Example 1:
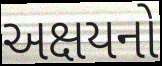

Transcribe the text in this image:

અક્ષયનો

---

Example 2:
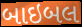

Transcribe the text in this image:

બાઇબલ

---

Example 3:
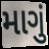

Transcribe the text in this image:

માગું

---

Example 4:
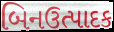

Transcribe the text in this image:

બિનઉત્પાદક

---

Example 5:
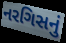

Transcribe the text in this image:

નરગિસનું